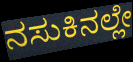
ನಸುಕಿನಲ್ಲೇ